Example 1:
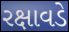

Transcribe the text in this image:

રક્ષાવડે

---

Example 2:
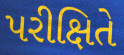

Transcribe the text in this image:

પરીક્ષિતે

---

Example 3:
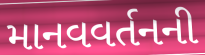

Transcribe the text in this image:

માનવવર્તનની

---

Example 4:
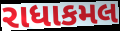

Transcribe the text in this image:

રાધાકમલ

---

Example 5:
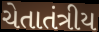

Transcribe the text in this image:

ચેતાતંત્રીય